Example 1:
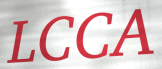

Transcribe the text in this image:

LCCA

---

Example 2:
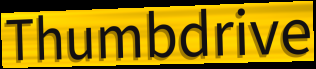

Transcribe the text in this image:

Thumbdrive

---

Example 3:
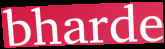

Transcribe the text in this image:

bharde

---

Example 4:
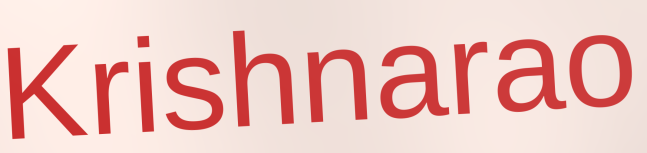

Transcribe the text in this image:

Krishnarao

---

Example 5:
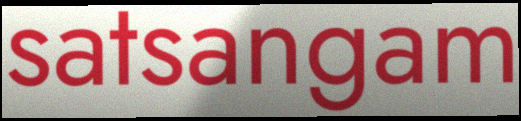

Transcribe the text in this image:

satsangam